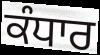
ਕੰਧਾਰ